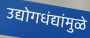
उद्योगधंद्यांमुळे